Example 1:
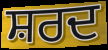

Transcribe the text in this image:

ਸ਼ਰਦ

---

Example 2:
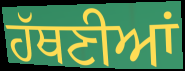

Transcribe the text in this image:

ਹੱਥਣੀਆਂ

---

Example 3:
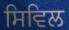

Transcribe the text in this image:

ਸਿਵਿਲ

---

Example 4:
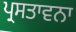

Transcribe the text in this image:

ਪ੍ਰਸਤਾਵਨਾ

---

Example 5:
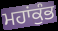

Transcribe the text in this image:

ਮਹਾਂਕੁੰਭ